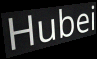
Hubei